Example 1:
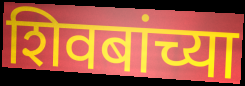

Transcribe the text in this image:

शिवबांच्या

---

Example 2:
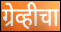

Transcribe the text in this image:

ग्रेव्हीचा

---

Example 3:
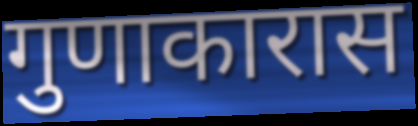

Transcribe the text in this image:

गुणाकारास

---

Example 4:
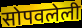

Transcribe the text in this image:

सोपवलेली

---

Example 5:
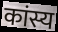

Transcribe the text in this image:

कांस्य